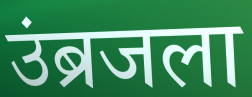
उंब्रजला